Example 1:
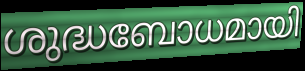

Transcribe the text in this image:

ശുദ്ധബോധമായി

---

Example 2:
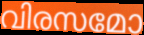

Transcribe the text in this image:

വിരസമോ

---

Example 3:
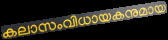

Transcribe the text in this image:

കലാസംവിധായകനുമായ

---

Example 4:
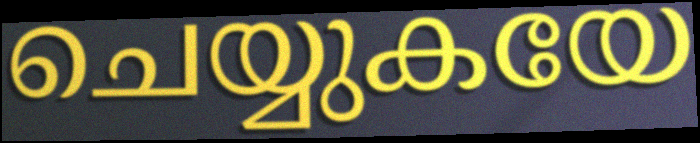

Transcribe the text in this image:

ചെയ്യുകയേ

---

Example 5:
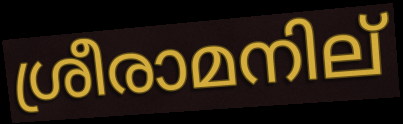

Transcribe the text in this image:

ശ്രീരാമനില്